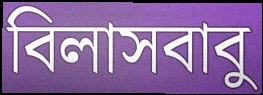
বিলাসবাবু